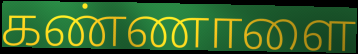
கண்ணாளை